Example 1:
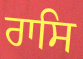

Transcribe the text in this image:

ਰਾਸਿ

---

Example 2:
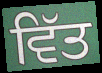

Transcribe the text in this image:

ਵਿੱਤ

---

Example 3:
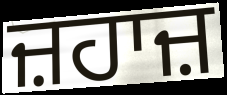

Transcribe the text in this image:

ਜ਼ਹਾਜ਼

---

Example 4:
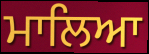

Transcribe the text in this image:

ਮਾਲਿਆ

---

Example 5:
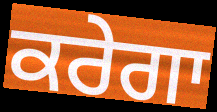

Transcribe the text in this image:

ਕਰੇਗਾ